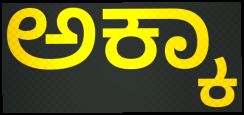
ಅಕ್ಕಾ